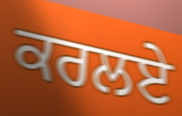
ਕਰਲਏ